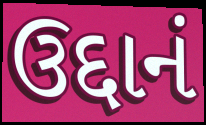
ઉદ્દાનં